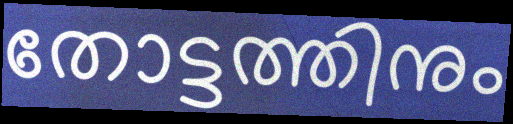
തോട്ടത്തിനും